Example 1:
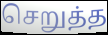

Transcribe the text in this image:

செறுத்த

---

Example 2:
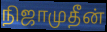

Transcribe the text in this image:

நிஜாமுதீன்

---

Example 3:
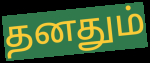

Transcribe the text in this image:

தனதும்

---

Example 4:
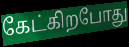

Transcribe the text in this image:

கேட்கிறபோது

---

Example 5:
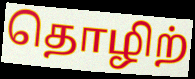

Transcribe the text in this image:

தொழிற்